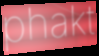
phakt